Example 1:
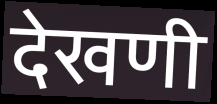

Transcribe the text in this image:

देखणी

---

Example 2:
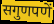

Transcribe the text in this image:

सगुणपणें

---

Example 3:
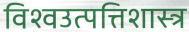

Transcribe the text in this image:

विश्वउत्पत्तिशास्त्र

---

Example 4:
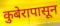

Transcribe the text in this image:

कुबेरापासून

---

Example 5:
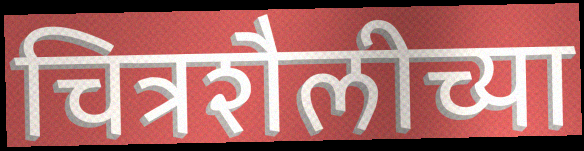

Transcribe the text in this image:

चित्रशैलीच्या